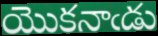
యొకనాఁడు